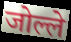
जोल्ले